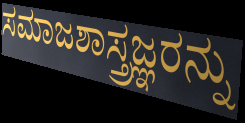
ಸಮಾಜಶಾಸ್ತ್ರಜ್ಞರನ್ನು